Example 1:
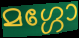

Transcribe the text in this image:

മഗ്ഗോ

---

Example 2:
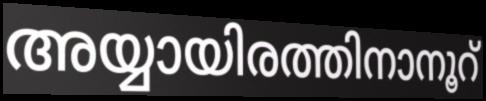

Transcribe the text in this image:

അയ്യായിരത്തിനാനൂറ്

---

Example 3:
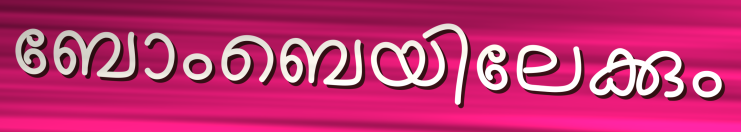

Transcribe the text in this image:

ബോംബെയിലേക്കും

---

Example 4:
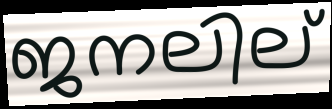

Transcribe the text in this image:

ജനലില്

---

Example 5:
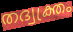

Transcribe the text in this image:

തദ്വക്ത്രം